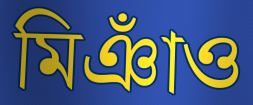
মিঞাঁও